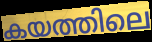
കയത്തിലെ